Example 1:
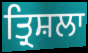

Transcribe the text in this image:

ਤ੍ਰਿਸ਼ਲਾ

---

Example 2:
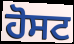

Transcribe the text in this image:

ਹੋਸਟ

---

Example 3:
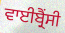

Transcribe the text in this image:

ਵਾਈਬ੍ਰੈਂਸੀ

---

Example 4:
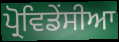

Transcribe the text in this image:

ਪ੍ਰੋਵਿਡੇਂਸੀਆ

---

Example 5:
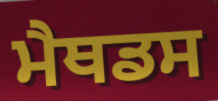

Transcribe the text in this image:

ਮੈਥਡਸ